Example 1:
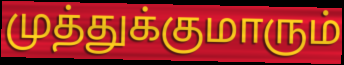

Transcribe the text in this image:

முத்துக்குமாரும்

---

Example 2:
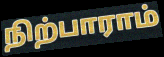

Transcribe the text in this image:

நிற்பாராம்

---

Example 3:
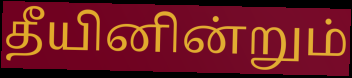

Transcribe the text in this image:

தீயினின்றும்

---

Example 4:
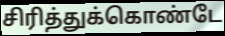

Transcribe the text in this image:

சிரித்துக்கொண்டே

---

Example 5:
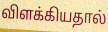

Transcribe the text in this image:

விளக்கியதால்